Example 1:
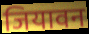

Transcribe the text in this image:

जियावन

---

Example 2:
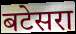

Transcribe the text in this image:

बटेसरा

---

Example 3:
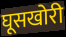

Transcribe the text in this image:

घूसखोरी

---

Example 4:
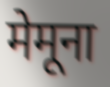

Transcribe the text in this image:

मेमूना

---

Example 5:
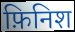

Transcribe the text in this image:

फ़िनिश